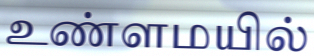
உண்ளமயில்